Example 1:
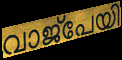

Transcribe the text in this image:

വാജ്പേയി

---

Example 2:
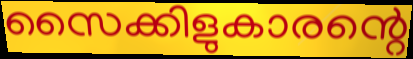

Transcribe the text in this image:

സൈക്കിളുകാരന്റെ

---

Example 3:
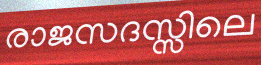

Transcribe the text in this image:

രാജസദസ്സിലെ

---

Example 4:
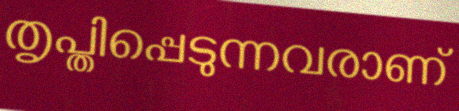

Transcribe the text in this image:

തൃപ്തിപ്പെടുന്നവരാണ്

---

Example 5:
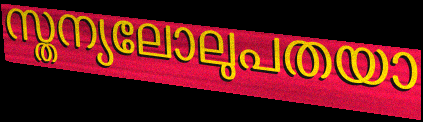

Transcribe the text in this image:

സ്തന്യലോലുപതയാ